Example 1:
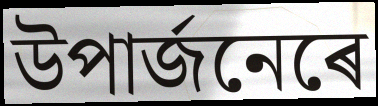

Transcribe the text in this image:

উপাৰ্জনেৰে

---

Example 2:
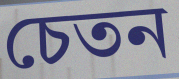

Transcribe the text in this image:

চেতন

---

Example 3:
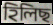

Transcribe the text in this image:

হিলিছ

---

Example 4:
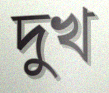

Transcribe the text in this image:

দুখ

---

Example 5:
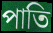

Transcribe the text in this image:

পাতি